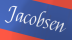
Jacobsen